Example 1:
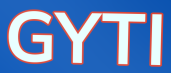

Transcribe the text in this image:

GYTI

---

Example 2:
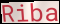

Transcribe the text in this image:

Riba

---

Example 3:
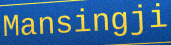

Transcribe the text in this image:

Mansingji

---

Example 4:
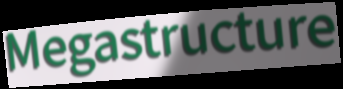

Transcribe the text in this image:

Megastructure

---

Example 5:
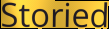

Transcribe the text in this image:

Storied